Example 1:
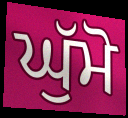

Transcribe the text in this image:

ਘੁੱਮੋ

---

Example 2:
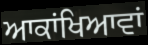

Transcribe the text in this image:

ਆਕਾਂਖਿਆਵਾਂ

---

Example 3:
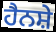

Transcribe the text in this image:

ਹੈਨਸ਼ੇ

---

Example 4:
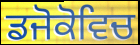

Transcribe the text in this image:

ਡਜੋਕੋਵਿਚ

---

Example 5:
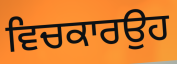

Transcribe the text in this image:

ਵਿਚਕਾਰਉਹ